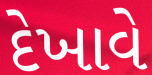
દેખાવે